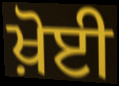
ਖ਼ੋਈ